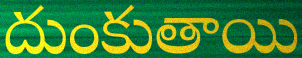
దుంకుతాయి